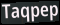
Taqpep